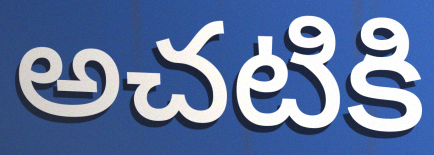
అచటికి